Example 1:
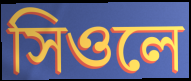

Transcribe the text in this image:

সিওলে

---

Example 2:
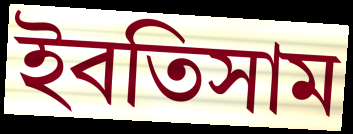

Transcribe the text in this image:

ইবতিসাম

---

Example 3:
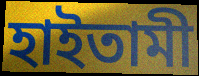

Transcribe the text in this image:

হাইতামী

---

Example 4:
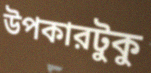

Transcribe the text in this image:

উপকারটুকু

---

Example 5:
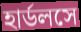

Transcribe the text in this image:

হার্ডলসে